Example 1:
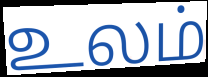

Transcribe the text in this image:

உலம்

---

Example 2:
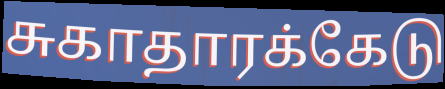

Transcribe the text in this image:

சுகாதாரக்கேடு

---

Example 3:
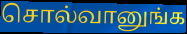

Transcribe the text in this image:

சொல்வானுங்க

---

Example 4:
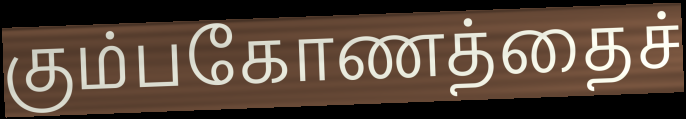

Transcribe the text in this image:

கும்பகோணத்தைச்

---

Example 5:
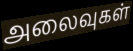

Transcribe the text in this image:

அலைவுகள்